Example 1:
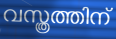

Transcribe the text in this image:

വസ്ത്രത്തിന്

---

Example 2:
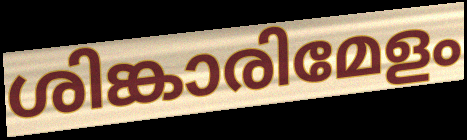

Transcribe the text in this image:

ശിങ്കാരിമേളം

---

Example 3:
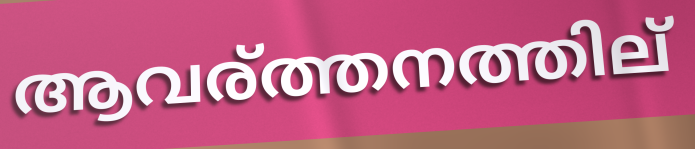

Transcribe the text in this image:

ആവര്ത്തനത്തില്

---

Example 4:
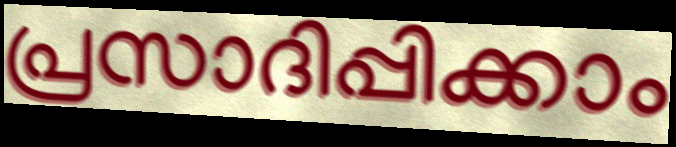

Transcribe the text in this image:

പ്രസാദിപ്പിക്കാം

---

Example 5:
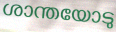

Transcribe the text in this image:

ശാന്തയോടു